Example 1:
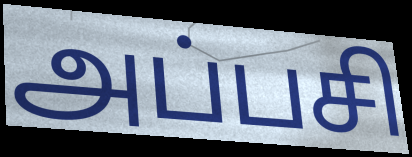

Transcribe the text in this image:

அப்பசி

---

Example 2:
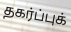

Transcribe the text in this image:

தகர்ப்புக்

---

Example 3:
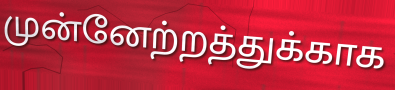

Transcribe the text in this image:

முன்னேற்றத்துக்காக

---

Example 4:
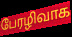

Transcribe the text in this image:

பேரழிவாக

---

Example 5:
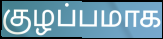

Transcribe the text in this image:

குழப்பமாக